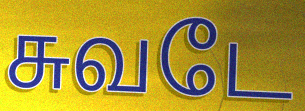
சுவடே